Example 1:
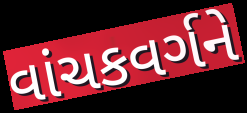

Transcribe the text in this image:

વાંચકવર્ગને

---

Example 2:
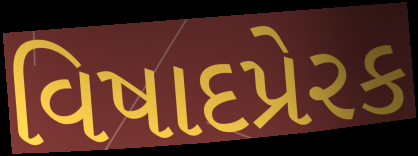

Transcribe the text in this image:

વિષાદપ્રેરક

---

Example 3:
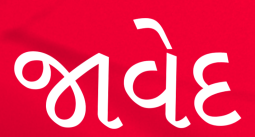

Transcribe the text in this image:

જાવેદ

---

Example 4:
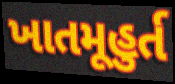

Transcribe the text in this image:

ખાતમૂહુર્ત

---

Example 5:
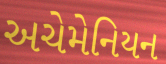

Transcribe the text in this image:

અચેમેનિયન